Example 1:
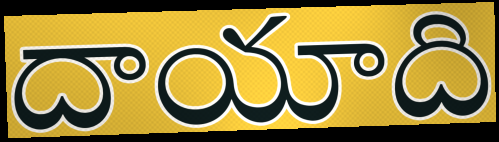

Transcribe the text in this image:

దాయాది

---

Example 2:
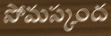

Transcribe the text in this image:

సోమస్కంద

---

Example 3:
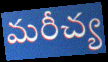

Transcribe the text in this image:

మరీచ్య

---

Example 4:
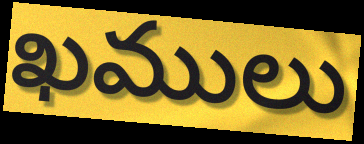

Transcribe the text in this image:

ఖములు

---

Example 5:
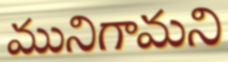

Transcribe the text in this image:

మునిగామని